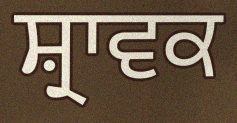
ਸ਼੍ਰਾਵਕ